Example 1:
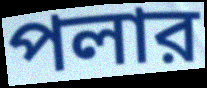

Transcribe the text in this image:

পলার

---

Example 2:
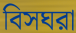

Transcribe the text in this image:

বিসঘরা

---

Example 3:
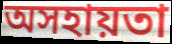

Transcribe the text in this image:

অসহায়তা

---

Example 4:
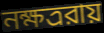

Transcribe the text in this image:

নক্ষত্ররায়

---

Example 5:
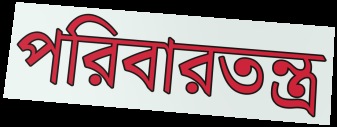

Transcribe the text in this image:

পরিবারতন্ত্র